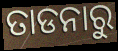
ତାଡନାରୁ